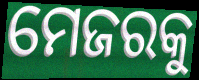
ମେଜରକୁ